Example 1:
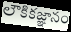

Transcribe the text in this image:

లౌకికజ్ఞానం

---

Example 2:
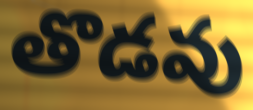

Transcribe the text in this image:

తొడవు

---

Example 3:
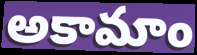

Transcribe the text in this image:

అకామాం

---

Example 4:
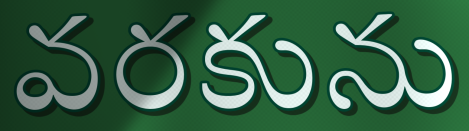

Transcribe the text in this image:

వరకును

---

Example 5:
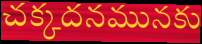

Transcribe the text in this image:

చక్కదనమునకు